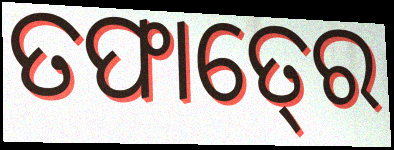
ତଫାତ୍‍ରେ